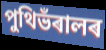
পুথিভঁৰালৰ